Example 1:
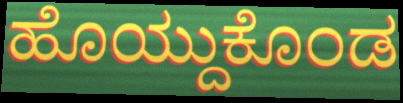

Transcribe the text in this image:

ಹೊಯ್ದುಕೊಂಡ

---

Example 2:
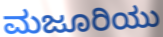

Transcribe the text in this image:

ಮಜೂರಿಯು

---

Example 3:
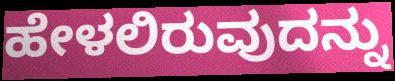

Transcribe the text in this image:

ಹೇಳಲಿರುವುದನ್ನು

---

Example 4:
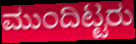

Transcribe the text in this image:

ಮುಂದಿಟ್ಟರು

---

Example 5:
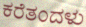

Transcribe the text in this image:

ಕರೆತಂದಳು